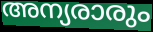
അന്യരാരും